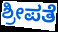
ಶ್ರೀಪತೆ